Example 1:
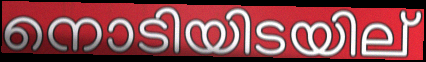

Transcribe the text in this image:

നൊടിയിടയില്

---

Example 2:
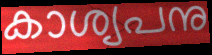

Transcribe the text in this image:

കാശ്യപനു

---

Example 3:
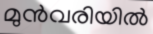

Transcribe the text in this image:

മുൻവരിയിൽ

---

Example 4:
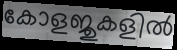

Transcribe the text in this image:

കോളജുകളിൽ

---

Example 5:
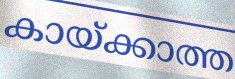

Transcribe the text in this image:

കായ്ക്കാത്ത